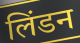
लिंडन